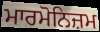
ਮਾਰਮੋਨਿਜ਼ਮ